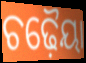
ଚଢ଼ୈୟା